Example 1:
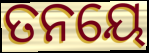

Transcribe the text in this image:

ତନୟେ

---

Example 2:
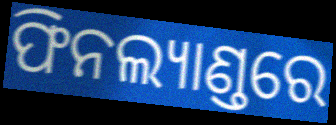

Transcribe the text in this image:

ଫିନଲ୍ୟାଣ୍ଡରେ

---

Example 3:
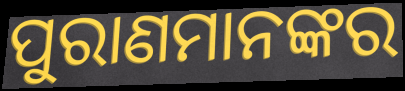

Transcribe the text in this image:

ପୁରାଣମାନଙ୍କର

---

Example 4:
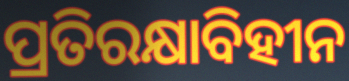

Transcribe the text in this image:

ପ୍ରତିରକ୍ଷାବିହୀନ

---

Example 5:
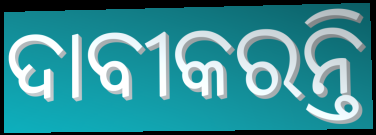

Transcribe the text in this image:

ଦାବୀକରନ୍ତି